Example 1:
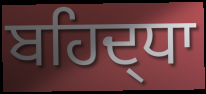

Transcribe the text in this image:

ਬਹਿਦ੍ਧਾ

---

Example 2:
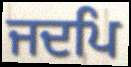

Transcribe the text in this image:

ਜਦਪਿ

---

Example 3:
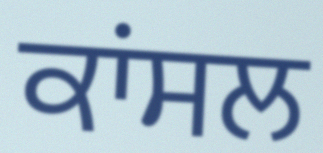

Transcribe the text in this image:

ਕਾਂਸਲ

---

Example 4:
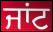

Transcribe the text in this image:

ਜਾਂਟ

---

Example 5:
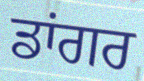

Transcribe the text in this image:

ਡਾਂਗਰ